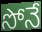
సోనే